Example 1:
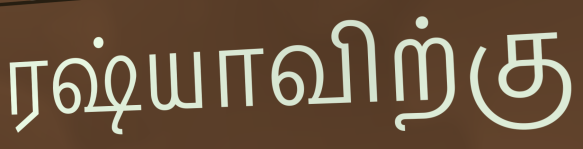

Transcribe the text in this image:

ரஷ்யாவிற்கு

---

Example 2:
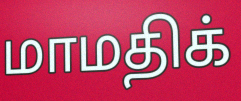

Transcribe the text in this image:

மாமதிக்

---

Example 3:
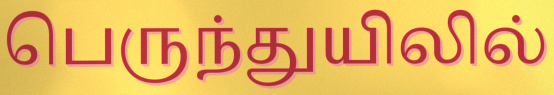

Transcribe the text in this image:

பெருந்துயிலில்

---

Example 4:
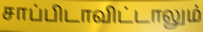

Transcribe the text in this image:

சாப்பிடாவிட்டாலும்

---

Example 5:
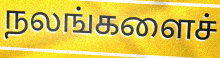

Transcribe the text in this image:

நலங்களைச்